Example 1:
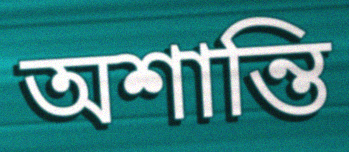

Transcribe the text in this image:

অশান্তি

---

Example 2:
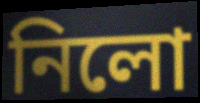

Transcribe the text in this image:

নিলো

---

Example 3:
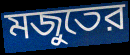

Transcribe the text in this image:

মজুতের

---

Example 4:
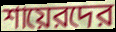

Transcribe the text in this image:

শায়েরদের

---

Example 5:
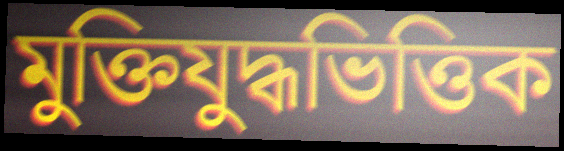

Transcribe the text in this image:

মুক্তিযুদ্ধভিত্তিক